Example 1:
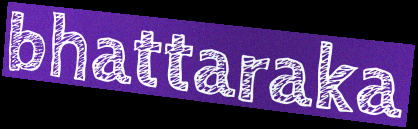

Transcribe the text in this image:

bhattaraka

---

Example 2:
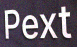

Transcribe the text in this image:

Pext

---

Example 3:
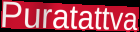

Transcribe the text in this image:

Puratattva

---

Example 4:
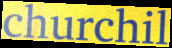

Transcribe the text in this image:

churchil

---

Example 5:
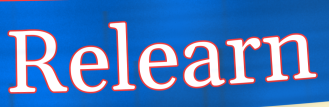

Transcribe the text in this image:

Relearn